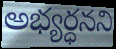
అభ్యర్ధనని